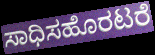
ಸಾಧಿಸಹೊರಟರೆ